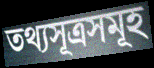
তথ্যসূত্ৰসমূহ